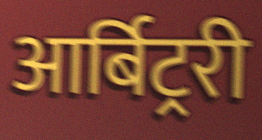
आर्बिट्ररी